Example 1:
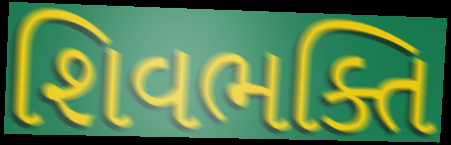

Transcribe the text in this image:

શિવભક્તિ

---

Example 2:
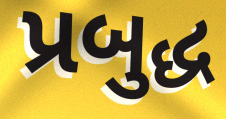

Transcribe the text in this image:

પ્રબુદ્ધ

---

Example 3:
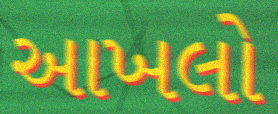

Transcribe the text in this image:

આખલો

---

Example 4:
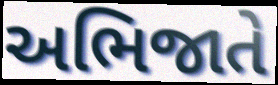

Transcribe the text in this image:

અભિજાતે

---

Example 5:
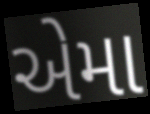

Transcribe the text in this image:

એમા